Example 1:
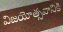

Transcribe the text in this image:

విజయోత్సవానికి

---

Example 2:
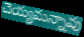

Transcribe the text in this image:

చెయ్యమన్నావు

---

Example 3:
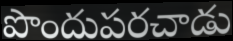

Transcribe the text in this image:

పొందుపరచాడు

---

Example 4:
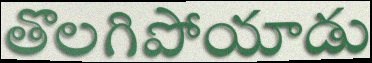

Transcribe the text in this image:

తొలగిపోయాడు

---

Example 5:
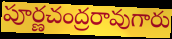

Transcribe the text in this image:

పూర్ణచంద్రరావుగారు